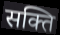
सक्ति